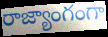
రాజ్యాంగంగా